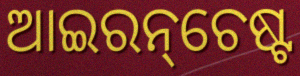
ଆଇରନ୍‌ଚେଷ୍ଟ